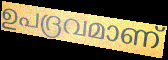
ഉപദ്രവമാണ്